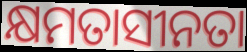
କ୍ଷମତାସୀନତା